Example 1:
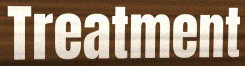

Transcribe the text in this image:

Treatment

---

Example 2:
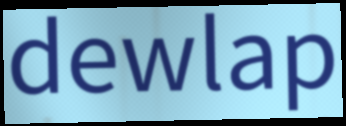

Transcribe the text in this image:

dewlap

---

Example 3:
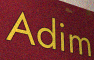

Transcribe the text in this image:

Adim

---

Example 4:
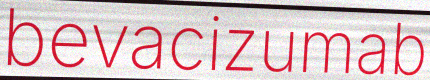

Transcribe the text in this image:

bevacizumab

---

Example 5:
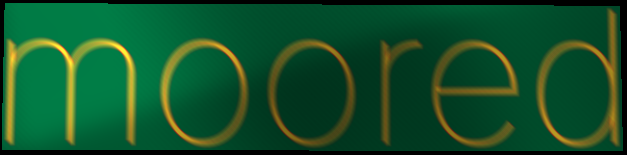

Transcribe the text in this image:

moored